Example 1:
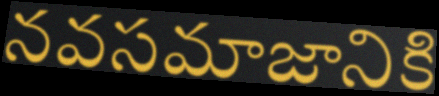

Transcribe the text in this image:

నవసమాజానికి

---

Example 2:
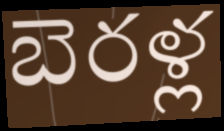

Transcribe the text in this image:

బెరళ్ల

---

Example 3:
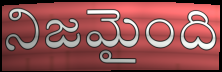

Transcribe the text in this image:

నిజమైంది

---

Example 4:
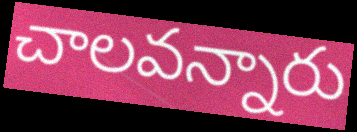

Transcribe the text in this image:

చాలవన్నారు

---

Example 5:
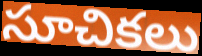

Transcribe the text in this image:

సూచికలు